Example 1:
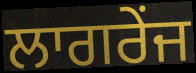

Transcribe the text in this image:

ਲਾਗਰੇਂਜ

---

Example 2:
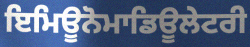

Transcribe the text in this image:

ਇਮਿਊਨੋਮਾਡਿਊਲੇਟਰੀ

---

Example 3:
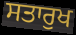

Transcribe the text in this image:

ਸਤਾਰੁਖ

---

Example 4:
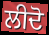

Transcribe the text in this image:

ਲੀਦੋ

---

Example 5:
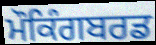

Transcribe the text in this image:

ਮੌਕਿੰਗਬਰਡ